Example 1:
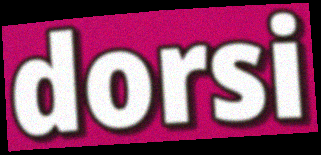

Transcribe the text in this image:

dorsi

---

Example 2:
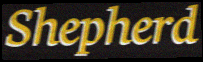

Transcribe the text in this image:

Shepherd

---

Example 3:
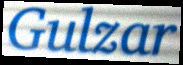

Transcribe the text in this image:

Gulzar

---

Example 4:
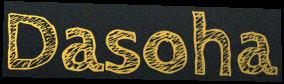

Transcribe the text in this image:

Dasoha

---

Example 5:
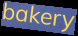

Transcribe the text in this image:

bakery